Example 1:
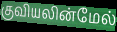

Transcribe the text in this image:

குவியலின்மேல்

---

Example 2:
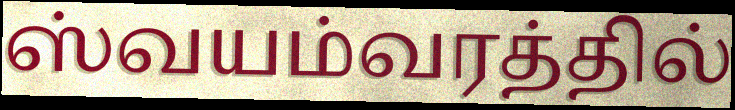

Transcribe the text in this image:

ஸ்வயம்வரத்தில்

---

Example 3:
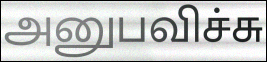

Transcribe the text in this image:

அனுபவிச்சு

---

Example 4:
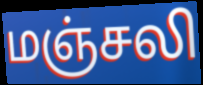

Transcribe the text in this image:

மஞ்சலி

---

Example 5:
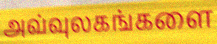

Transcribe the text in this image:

அவ்வுலகங்களை